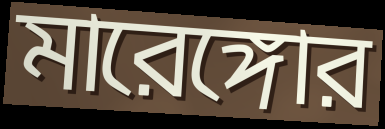
মারেঙ্গোর